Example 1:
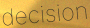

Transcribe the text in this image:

decision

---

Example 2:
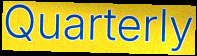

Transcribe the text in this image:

Quarterly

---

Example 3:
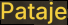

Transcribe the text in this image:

Pataje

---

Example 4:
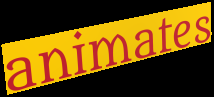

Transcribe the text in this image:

animates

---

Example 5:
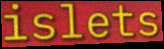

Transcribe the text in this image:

islets